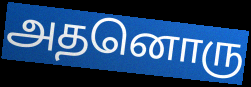
அதனொரு